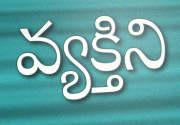
వ్యక్తిని